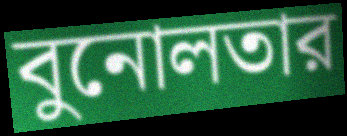
বুনোলতার